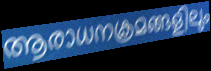
ആരാധനക്രമങ്ങളിലും